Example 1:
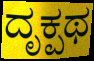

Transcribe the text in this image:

ದೃಕ್ಪಥ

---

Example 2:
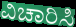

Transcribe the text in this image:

ವಿಚಾರಿಸಿ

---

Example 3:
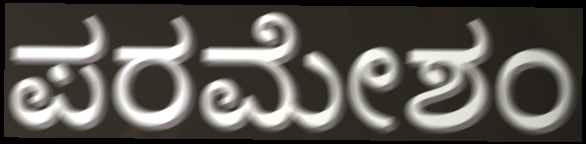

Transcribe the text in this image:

ಪರಮೇಶಂ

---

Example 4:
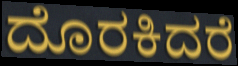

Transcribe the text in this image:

ದೊರಕಿದರೆ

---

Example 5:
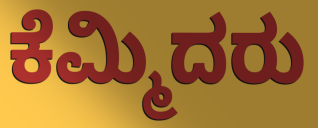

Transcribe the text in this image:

ಕೆಮ್ಮಿದರು